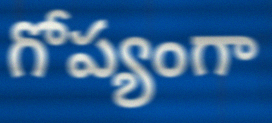
గోప్యంగా